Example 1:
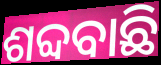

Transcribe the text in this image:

ଶବ୍ଦବାଛି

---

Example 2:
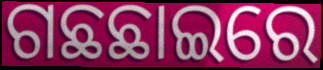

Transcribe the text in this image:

ଗଛଛାଇରେ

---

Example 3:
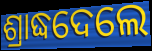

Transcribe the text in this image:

ଶ୍ରାଦ୍ଧଦେଲେ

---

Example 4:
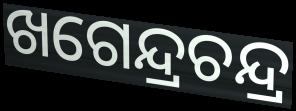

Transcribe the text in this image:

ଖଗେନ୍ଦ୍ରଚନ୍ଦ୍ର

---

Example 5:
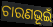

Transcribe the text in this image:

ଚାରଣଭୂଇଁ